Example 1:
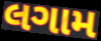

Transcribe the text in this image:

લગામ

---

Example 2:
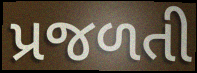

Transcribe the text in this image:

પ્રજળતી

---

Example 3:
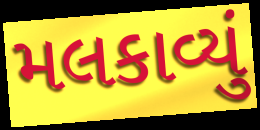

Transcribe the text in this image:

મલકાવ્યું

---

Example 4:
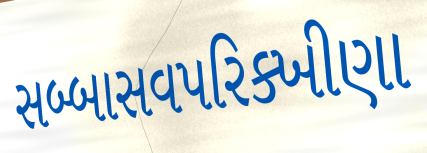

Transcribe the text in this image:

સબ્બાસવપરિક્ખીણા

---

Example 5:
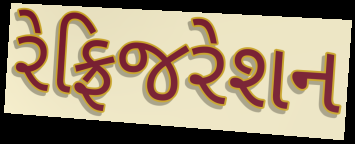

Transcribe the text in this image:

રેફ્રિજરેશન